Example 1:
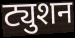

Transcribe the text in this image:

ट्युशन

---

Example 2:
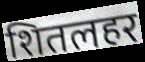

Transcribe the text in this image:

शितलहर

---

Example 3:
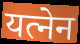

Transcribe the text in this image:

यत्नेन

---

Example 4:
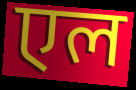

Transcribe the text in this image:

एल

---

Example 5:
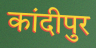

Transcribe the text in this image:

कांदीपुर